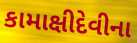
કામાક્ષીદેવીના